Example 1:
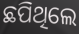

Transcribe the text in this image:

ଛପିଥିଲେ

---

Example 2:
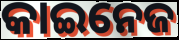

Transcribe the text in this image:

କାଇନେଜ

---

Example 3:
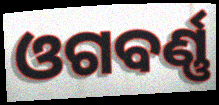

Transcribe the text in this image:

ଓଗବର୍ଣ୍ଣ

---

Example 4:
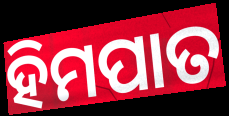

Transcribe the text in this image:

ହିମପାତ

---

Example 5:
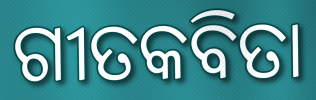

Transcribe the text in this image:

ଗୀତକବିତା